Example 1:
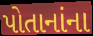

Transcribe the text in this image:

પોતાનાંના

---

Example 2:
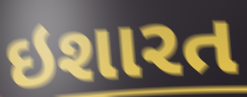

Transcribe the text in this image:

ઇશારત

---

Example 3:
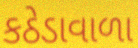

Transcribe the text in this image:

કઠેડાવાળા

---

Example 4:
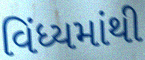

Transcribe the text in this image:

વિંધ્યમાંથી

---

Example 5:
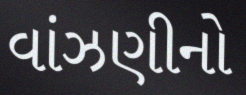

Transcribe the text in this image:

વાંઝણીનો